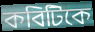
কবিটিকে